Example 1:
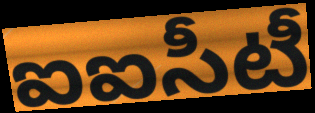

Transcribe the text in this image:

ఐఐసీటీ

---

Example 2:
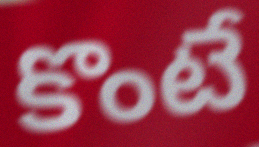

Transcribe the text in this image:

కొంటే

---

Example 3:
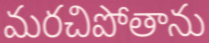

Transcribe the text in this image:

మరచిపోతాను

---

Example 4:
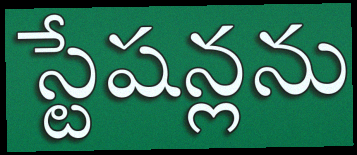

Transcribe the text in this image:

స్టేషన్లను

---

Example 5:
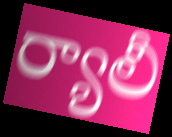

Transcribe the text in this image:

ర్యాలీ